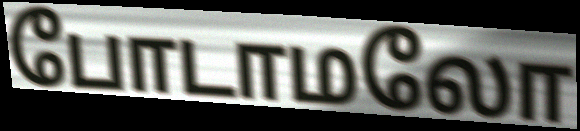
போடாமலோ